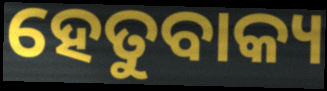
ହେତୁବାକ୍ୟ